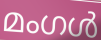
മംഗൾ